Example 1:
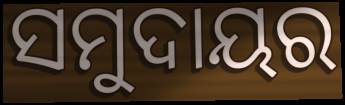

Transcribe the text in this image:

ସମୁଦାୟର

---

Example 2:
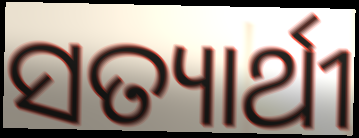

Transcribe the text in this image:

ସତ୍ୟାର୍ଥୀ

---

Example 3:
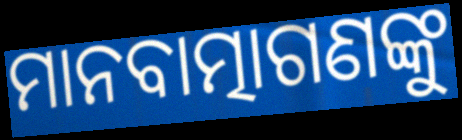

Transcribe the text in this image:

ମାନବାତ୍ମାଗଣଙ୍କୁ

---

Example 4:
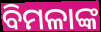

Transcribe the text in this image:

ବିମଳାଙ୍କ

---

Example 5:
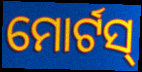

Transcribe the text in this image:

ମୋର୍ଟସ୍